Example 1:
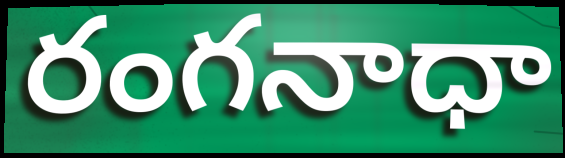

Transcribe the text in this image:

రంగనాధా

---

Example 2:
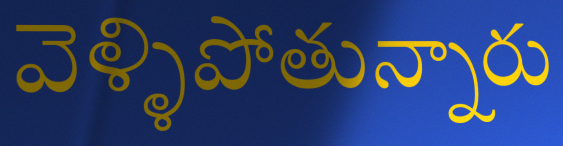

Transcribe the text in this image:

వెళ్ళిపోతున్నారు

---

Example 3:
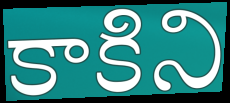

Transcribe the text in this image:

కాకిని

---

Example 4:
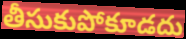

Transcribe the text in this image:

తీసుకుపోకూడదు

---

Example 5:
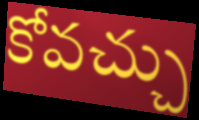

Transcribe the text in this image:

కోవచ్చు